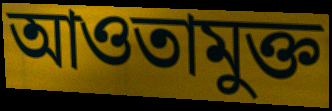
আওতামুক্ত